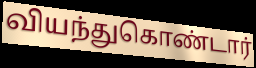
வியந்துகொண்டார்